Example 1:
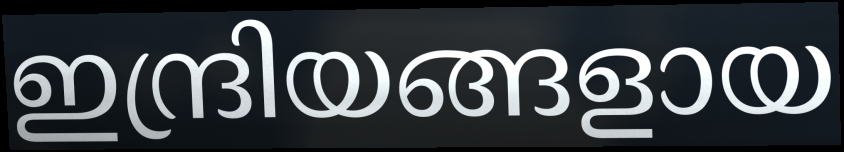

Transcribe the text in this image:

ഇന്ദ്രിയങ്ങളായ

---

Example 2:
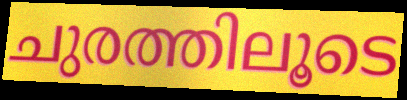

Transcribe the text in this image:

ചുരത്തിലൂടെ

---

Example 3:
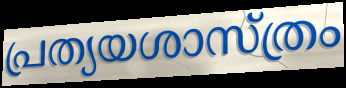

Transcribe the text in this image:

പ്രത്യയശാസ്ത്രം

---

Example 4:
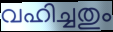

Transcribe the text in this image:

വഹിച്ചതും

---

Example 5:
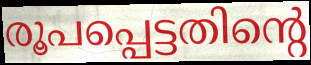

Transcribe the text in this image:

രൂപപ്പെട്ടതിന്റെ